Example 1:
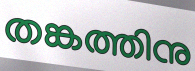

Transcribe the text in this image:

തങ്കത്തിനു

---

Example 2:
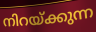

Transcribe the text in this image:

നിറയ്ക്കുന്ന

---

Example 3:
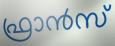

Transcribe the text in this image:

ഫ്രാൻസ്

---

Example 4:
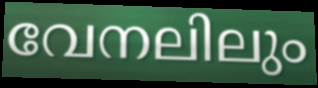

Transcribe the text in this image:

വേനലിലും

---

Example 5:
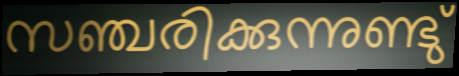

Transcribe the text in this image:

സഞ്ചരിക്കുന്നുണ്ടു്